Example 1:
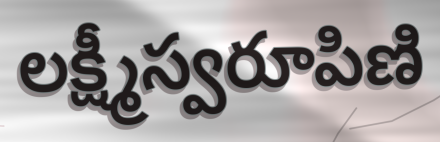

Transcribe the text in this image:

లక్ష్మీస్వరూపిణి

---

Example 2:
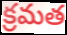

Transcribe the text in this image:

క్రమత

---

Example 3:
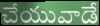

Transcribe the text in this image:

చేయువాడే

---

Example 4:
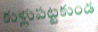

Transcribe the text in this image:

కుళ్లుపట్టకుండ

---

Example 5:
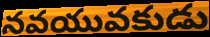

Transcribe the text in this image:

నవయువకుడు